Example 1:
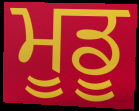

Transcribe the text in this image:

ਮੂਡੂ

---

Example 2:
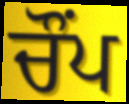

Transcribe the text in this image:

ਚੌਂਪ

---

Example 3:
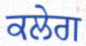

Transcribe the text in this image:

ਕਲੇਗ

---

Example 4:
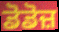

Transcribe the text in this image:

ਡੋਡੋਜ਼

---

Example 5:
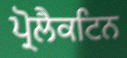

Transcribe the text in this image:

ਪ੍ਰੋਲੈਕਟਿਨ